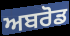
ਅਬਰੋਡ